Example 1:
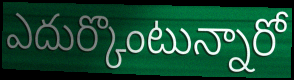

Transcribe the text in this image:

ఎదుర్కొంటున్నారో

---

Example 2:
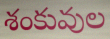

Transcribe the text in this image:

శంకువుల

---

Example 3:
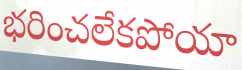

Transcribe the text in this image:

భరించలేకపోయా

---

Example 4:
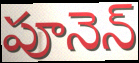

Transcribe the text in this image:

పూనెన్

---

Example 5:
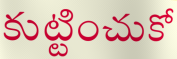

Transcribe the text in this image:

కుట్టించుకో